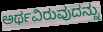
ಅರ್ಥವಿರುವುದನ್ನು